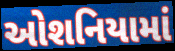
ઓશનિયામાં